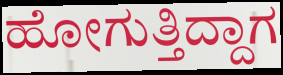
ಹೋಗುತ್ತಿದ್ದಾಗ